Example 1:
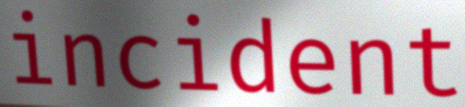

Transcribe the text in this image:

incident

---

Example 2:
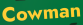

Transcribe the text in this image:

Cowman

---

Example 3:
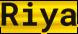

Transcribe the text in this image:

Riya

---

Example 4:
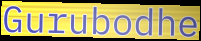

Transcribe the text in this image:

Gurubodhe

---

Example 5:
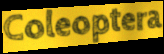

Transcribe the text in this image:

Coleoptera